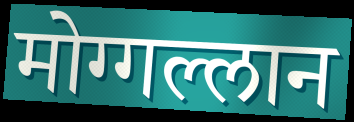
मोग्गल्लान